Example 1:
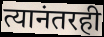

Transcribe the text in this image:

त्यानंतरही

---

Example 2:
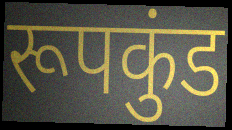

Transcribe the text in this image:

रूपकुंड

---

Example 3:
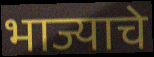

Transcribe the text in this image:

भाज्याचे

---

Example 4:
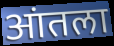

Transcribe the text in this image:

आंतला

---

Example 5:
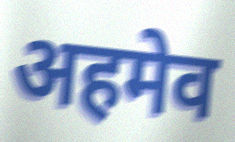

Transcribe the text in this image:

अहमेव